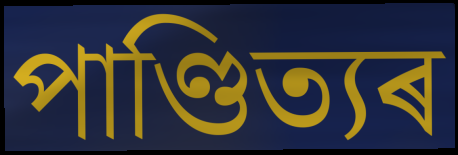
পাণ্ডিত্যৰ